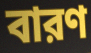
বারণ